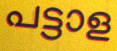
പട്ടാള